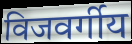
विजवर्गीय